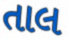
તાલ